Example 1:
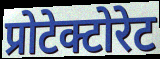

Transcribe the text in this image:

प्रोटेक्टोरेट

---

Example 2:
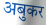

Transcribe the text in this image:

अबुकर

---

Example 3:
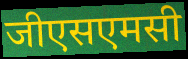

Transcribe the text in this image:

जीएसएमसी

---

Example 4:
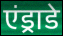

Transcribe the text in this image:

एंड्राडे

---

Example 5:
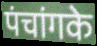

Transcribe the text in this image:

पंचांगके